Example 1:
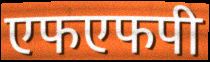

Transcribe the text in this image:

एफएफपी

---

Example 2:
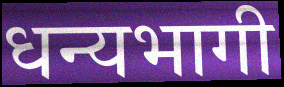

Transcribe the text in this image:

धन्यभागी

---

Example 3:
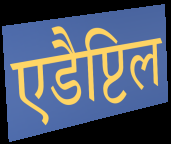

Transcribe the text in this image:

एडैप्टिल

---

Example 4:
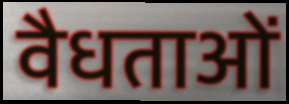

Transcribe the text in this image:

वैधताओं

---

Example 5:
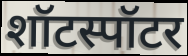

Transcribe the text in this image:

शॉटस्पॉटर